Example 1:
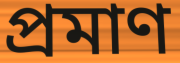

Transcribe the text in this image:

প্ৰমাণ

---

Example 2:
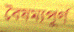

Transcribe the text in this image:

বৈষম্যপূৰ্ণ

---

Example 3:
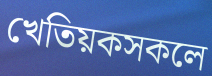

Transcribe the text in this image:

খেতিয়কসকলে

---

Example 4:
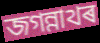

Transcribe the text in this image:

জগন্নাথৰ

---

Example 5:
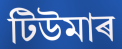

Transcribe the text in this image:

টিউমাৰ